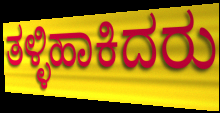
ತಳ್ಳಿಹಾಕಿದರು